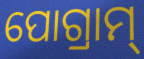
ପୋଗ୍ରାମ୍